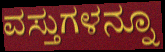
ವಸ್ತುಗಳನ್ನೂ